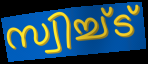
സ്വിച്ച്ട്